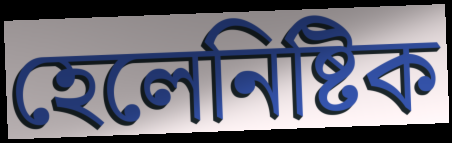
হেলেনিষ্টিক